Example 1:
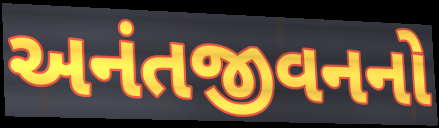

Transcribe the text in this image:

અનંતજીવનનો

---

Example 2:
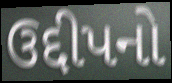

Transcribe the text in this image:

ઉદ્દીપનો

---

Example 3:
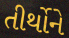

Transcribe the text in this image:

તીર્થોને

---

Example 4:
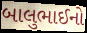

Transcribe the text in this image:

બાલુભાઈનો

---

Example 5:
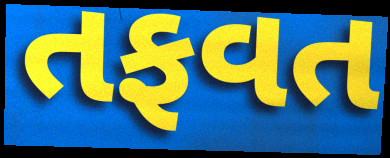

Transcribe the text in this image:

તફવત